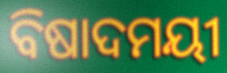
ବିଷାଦମୟୀ